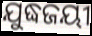
ଯୁଦ୍ଧଜୟୀ